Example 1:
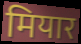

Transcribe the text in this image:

मियार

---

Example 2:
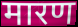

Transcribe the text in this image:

मारण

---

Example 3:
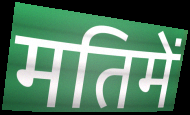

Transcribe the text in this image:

मतिमें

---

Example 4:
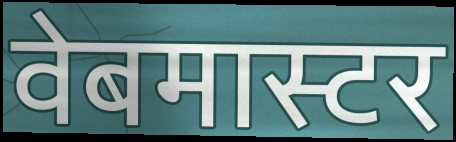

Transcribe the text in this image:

वेबमास्टर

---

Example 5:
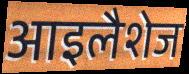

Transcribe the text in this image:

आइलैशेज